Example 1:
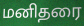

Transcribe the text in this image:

மனிதரை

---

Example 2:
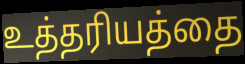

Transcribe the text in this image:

உத்தரியத்தை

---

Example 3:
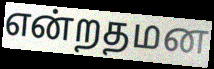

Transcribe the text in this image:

என்றதமன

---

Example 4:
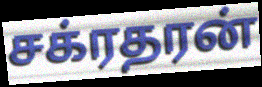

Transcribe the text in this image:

சக்ரதரன்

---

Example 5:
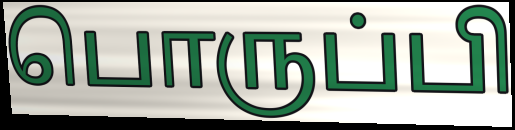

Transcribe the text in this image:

பொருப்பி